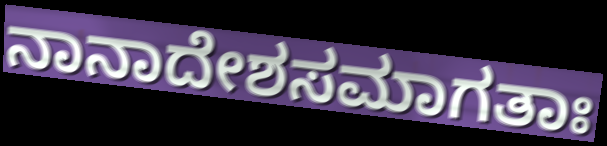
ನಾನಾದೇಶಸಮಾಗತಾಃ